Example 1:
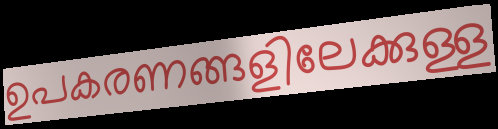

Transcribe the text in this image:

ഉപകരണങ്ങളിലേക്കുള്ള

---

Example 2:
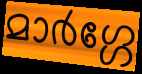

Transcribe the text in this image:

മാർഗ്ഗേ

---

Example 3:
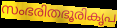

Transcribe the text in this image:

സംഭരിതഭൂരികൃപ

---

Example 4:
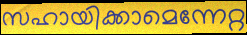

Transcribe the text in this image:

സഹായിക്കാമെന്നേറ്റ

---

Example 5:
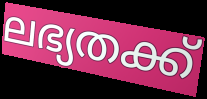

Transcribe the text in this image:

ലഭ്യതക്ക്